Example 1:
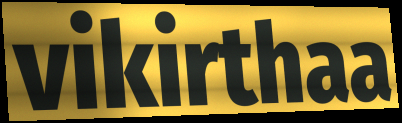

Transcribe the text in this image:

vikirthaa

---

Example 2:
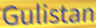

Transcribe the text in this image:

Gulistan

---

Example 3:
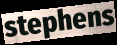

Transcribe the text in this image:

stephens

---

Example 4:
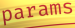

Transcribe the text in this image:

params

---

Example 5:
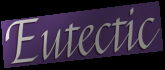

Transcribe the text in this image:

Eutectic